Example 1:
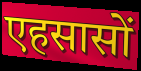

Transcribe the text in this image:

एहसासों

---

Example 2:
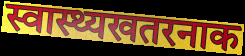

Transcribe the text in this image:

स्वास्थ्यखतरनाक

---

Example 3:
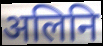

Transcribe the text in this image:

अलिनि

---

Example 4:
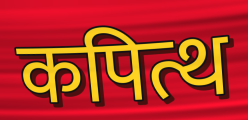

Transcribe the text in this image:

कपित्थ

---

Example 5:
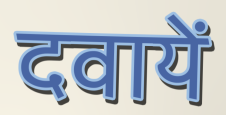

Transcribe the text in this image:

दवायें